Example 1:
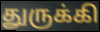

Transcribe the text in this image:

துருக்கி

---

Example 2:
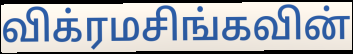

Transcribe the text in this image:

விக்ரமசிங்கவின்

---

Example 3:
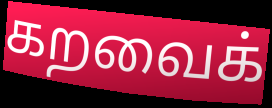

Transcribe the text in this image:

கறவைக்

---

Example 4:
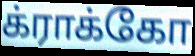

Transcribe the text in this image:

க்ராக்கோ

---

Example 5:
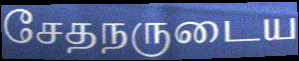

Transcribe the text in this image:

சேதநருடைய